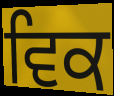
ਵਿਕ